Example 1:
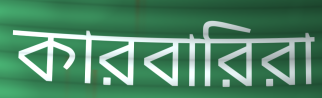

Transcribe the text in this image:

কারবারিরা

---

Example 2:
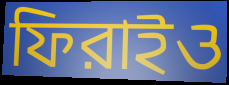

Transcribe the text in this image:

ফিরাইও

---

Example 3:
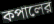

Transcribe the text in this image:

কপালের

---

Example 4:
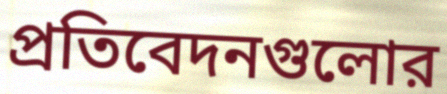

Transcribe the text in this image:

প্রতিবেদনগুলোর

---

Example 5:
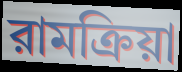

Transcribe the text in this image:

রামক্রিয়া